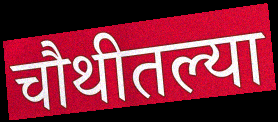
चौथीतल्या